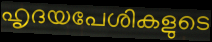
ഹൃദയപേശികളുടെ